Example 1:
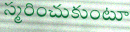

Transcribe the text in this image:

స్మరించుకుంటూ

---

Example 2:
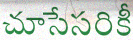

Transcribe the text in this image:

చూసేసరికీ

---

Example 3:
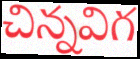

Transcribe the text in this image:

చిన్నవిగ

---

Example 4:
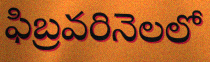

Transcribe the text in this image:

ఫిబ్రవరినెలలో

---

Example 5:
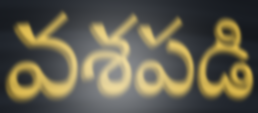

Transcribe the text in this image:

వశపడి